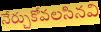
నేర్చుకోవలసినవి